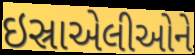
ઇસ્રાએલીઓને